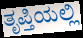
ತೃಪ್ತಿಯಲ್ಲಿ